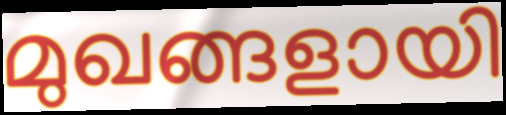
മുഖങ്ങളായി